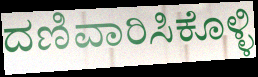
ದಣಿವಾರಿಸಿಕೊಳ್ಳಿ